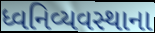
ધ્વનિવ્યવસ્થાના